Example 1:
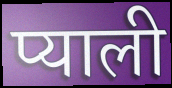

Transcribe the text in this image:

प्याली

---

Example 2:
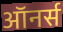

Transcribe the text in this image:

ऑनर्स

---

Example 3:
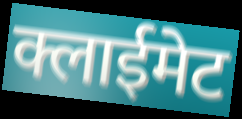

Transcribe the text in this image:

क्लाईमेट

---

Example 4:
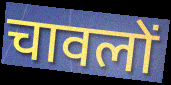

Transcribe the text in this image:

चावलों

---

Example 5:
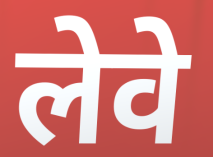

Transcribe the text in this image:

लेवे